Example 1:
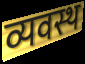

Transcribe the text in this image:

व्यवस्थ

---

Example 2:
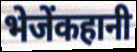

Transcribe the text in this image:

भेजेंकहानी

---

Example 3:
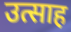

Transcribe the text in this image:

उत्साह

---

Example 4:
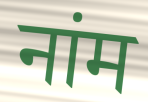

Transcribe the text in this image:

नांम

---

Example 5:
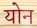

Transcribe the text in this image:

योन